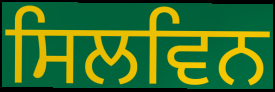
ਸਿਲਵਿਨ